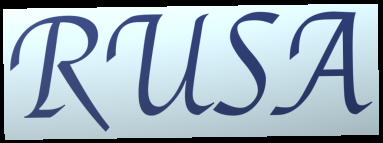
RUSA